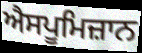
ਐਸਪੂਮਿਜ਼ਾਨ